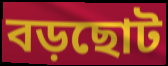
বড়ছোট